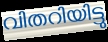
വിതറിയിട്ടു